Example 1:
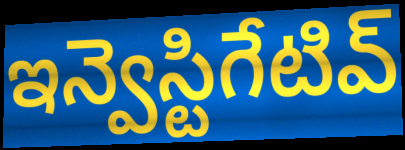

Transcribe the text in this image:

ఇన్వెస్టిగేటివ్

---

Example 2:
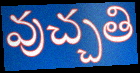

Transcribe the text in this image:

వుచ్చతి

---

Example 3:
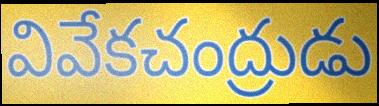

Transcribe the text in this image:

వివేకచంద్రుడు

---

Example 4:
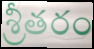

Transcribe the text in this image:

శ్రీతరం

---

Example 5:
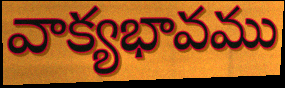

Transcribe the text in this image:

వాక్యభావము